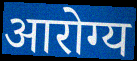
आरोग्य